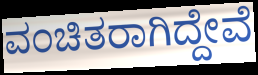
ವಂಚಿತರಾಗಿದ್ದೇವೆ